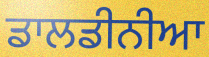
ਡਾਲਡੀਨੀਆ